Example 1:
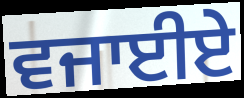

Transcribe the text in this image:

ਵਜਾਈਏ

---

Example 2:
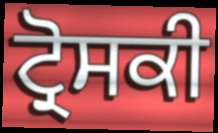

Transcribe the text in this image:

ਟ੍ਰੋਸਕੀ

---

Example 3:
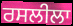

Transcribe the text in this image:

ਰਸਲੀਲਾ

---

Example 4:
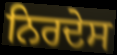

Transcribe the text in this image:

ਨਿਰਦੇਸ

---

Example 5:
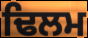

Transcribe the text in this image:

ਢਿਲਮ